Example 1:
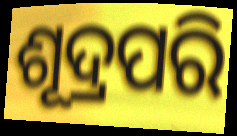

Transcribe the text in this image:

ଶୂଦ୍ରପରି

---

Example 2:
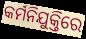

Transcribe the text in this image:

କର୍ମନିଯୁକ୍ତିରେ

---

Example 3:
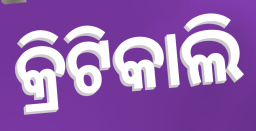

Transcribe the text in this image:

କ୍ରିଟିକାଲି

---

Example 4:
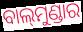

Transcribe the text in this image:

ବାଲ୍‍ମୁଣ୍ଡାର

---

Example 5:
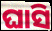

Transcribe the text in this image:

ଘାସି